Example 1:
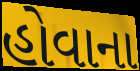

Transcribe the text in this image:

હોવાના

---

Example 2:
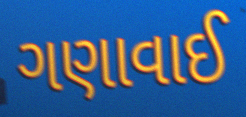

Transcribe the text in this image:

ગણાવાઈ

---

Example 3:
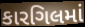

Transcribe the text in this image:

કારગિલમાં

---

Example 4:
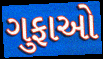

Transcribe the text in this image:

ગુફાઓ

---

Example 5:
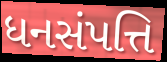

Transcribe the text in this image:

ધનસંપત્તિ